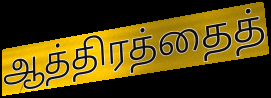
ஆத்திரத்தைத்